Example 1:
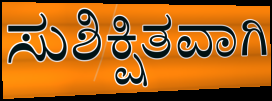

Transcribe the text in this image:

ಸುಶಿಕ್ಷಿತವಾಗಿ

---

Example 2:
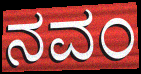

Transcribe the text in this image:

ನವಂ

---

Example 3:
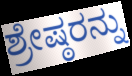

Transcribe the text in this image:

ಶ್ರೇಷ್ಠರನ್ನು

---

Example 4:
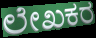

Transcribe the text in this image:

ಲೇಖಕರ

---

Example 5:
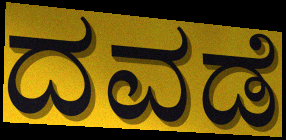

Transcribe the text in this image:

ದವಡೆ